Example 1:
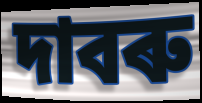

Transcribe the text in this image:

দাবৰু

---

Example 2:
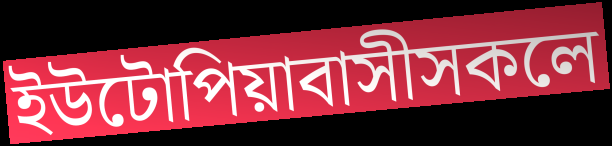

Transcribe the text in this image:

ইউটোপিয়াবাসীসকলে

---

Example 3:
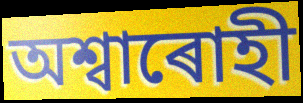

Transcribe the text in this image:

অশ্বাৰোহী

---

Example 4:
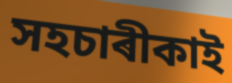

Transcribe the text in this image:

সহচাৰীকাই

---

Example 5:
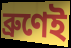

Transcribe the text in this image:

ব্ৰুণেই